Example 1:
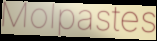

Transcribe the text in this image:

Molpastes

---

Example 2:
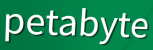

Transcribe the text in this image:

petabyte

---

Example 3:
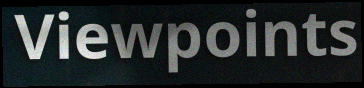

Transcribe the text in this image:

Viewpoints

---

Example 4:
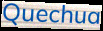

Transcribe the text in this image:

Quechua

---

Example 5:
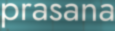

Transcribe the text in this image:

prasana